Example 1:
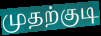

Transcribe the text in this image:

முதற்குடி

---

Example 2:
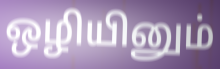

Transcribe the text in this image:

ஒழியினும்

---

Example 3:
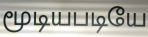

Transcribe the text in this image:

மூடியபடியே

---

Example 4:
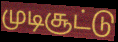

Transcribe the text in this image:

முடிசூட்டு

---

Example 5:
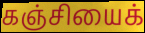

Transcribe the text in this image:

கஞ்சியைக்